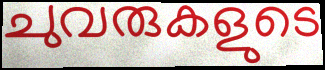
ചുവരുകളുടെ